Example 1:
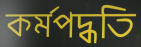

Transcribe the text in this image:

কর্মপদ্ধতি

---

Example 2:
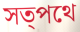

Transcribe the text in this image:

সত্পথে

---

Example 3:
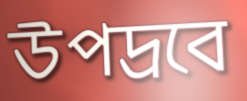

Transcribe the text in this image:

উপদ্রবে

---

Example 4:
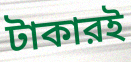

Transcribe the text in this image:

টাকারই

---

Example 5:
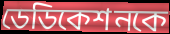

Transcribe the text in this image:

ডেডিকেশনকে